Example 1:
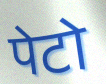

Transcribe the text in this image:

पेटो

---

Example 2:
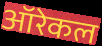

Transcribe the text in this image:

ऑरेकल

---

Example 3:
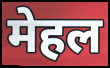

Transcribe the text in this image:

मेहल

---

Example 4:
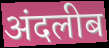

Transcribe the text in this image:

अंदलीब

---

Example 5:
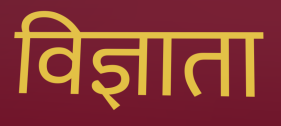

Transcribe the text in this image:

विज्ञाता